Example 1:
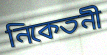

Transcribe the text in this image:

নিকেতনী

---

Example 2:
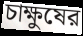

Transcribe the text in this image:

চাক্ষুষের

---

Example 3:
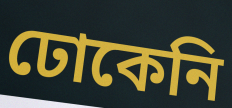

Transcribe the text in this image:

ঢোকেনি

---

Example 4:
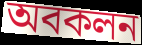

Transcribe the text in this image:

অবকলন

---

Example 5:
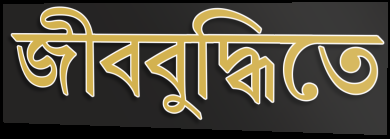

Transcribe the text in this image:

জীববুদ্ধিতে